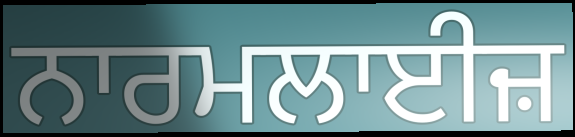
ਨਾਰਮਲਾਈਜ਼